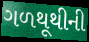
ગળથૂથીની